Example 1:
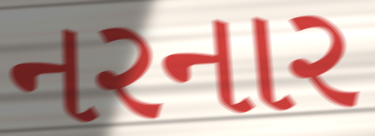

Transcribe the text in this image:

નરનાર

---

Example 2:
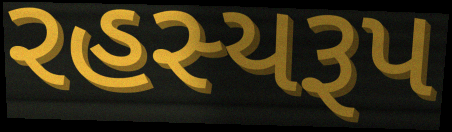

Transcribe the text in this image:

રહસ્યરૂપ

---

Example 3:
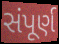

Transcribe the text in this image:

સંપૂર્ણ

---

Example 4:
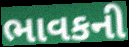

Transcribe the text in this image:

ભાવકની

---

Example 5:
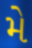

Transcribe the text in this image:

મે